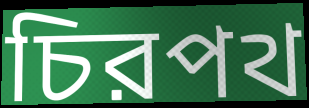
চিরপথ